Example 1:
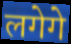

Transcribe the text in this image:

लगेगे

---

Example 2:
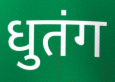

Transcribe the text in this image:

धुतंग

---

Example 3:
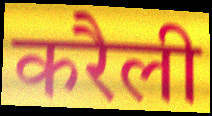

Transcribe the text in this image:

करैली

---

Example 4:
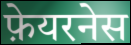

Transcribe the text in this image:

फ़ेयरनेस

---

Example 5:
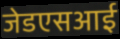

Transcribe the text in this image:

जेडएसआई